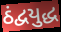
ઠંદ્વયુદ્ધ